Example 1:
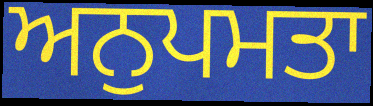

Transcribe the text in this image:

ਅਨੁਪਮਤਾ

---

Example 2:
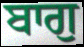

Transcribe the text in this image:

ਬਾਗੁ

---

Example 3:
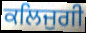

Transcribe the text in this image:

ਕਲਿਜੁਗੀ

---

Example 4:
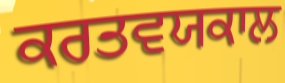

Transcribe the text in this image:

ਕਰਤਵਯਕਾਲ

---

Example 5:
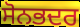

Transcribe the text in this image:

ਸੋਨਭਦਰ